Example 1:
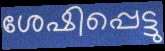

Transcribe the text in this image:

ശേഷിപ്പെട്ടു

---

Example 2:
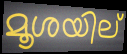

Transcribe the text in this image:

മൂശയില്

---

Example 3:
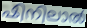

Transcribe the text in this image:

ഷിനിലാൽ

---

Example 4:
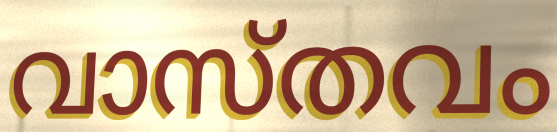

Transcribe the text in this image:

വാസ്തവം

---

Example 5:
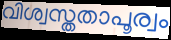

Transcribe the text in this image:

വിശ്വസ്തതാപൂര്വം